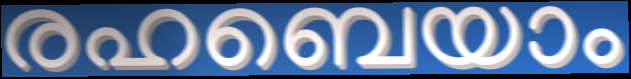
രഹബെയാം